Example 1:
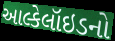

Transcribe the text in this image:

આલ્કેલૉઇડનો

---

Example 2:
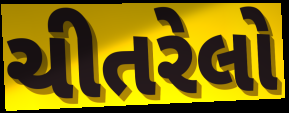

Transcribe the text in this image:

ચીતરેલો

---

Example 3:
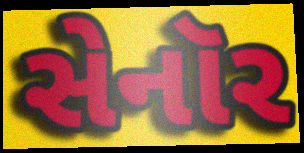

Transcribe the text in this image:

સેનૉર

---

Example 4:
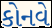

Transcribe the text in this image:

કોનવે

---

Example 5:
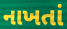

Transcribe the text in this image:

નાખતાં